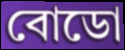
বোডো